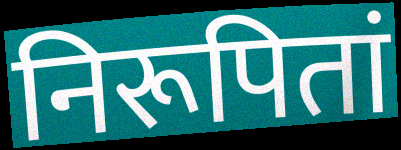
निरूपितां